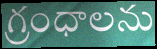
గ్రంధాలను